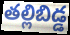
తల్లిబిడ్డ